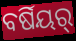
ବର୍ଷିୟର୍